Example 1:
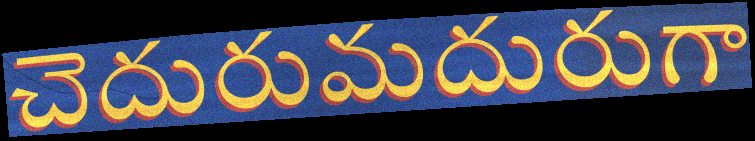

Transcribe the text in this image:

చెదురుమదురుగా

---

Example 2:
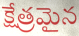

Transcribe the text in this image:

క్షేత్రమైన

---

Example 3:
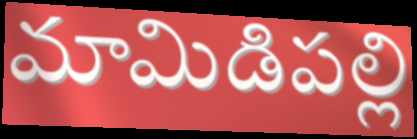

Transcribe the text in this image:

మామిడిపల్లి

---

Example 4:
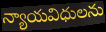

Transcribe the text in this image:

న్యాయవిధులను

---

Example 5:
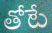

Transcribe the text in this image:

తోటే